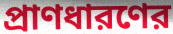
প্রাণধারণের